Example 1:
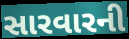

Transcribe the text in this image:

સારવારની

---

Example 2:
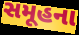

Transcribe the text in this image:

સમૂહના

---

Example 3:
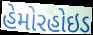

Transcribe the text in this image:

હેમોરહોઇડ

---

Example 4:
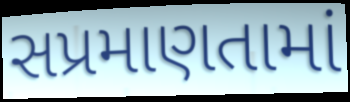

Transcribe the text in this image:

સપ્રમાણતામાં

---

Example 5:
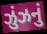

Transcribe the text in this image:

ઝુંઝનું